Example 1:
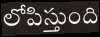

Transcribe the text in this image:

లోపిస్తుంది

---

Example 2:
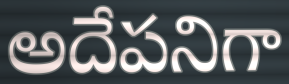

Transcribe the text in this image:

అదేపనిగా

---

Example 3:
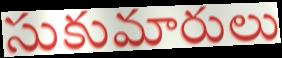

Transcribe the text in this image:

సుకుమారులు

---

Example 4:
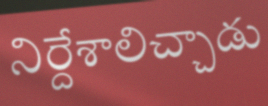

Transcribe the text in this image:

నిర్దేశాలిచ్చాడు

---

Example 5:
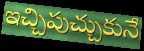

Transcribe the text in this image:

ఇచ్చిపుచ్చుకునే